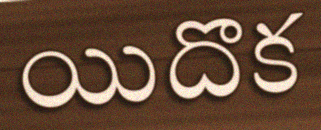
యిదొక